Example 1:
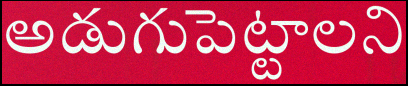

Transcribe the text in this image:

అడుగుపెట్టాలని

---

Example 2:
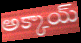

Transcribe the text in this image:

అక్కాయ్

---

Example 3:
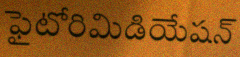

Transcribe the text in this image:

ఫైటోరిమిడియేషన్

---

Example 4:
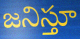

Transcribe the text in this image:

జనిస్తూ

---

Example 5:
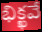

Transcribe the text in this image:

భిక్ఖవే